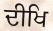
ਦੀਖਿ